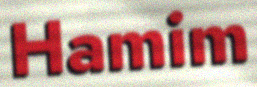
Hamim